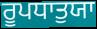
ਰੂਪਧਾਤੁਯਾ